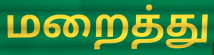
மறைத்து